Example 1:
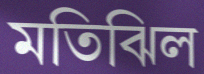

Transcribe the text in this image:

মতিঝিল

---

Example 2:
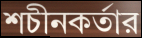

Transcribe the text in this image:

শচীনকর্তার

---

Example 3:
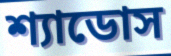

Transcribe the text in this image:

শ্যাডোস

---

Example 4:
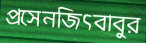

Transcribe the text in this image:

প্রসেনজিৎবাবুর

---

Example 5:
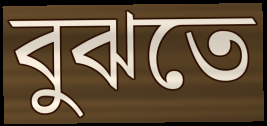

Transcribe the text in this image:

বুঝতে